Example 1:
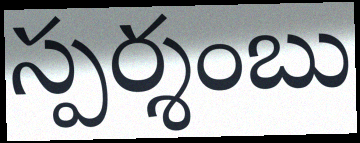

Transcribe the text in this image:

స్పర్శంబు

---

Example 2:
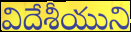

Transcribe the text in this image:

విదేశీయుని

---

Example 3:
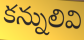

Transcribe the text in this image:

కన్నులివి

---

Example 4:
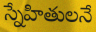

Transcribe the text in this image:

స్నేహితులనే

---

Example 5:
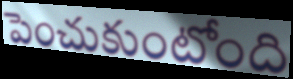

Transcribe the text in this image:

పెంచుకుంటోంది